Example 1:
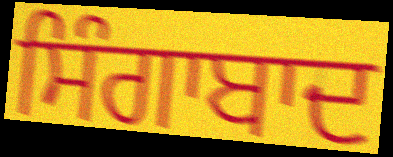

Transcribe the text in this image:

ਸਿੰਗਾਬਾਦ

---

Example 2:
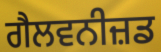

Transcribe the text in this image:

ਗੈਲਵਨੀਜ਼ਡ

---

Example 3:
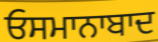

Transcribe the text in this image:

ਓਸਮਾਨਾਬਾਦ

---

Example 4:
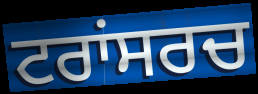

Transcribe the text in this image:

ਟਰਾਂਸਰਚ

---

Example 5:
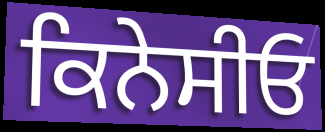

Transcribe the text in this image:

ਕਿਨੇਸੀਓ